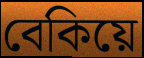
বেকিয়ে